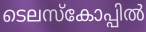
ടെലസ്കോപ്പിൽ